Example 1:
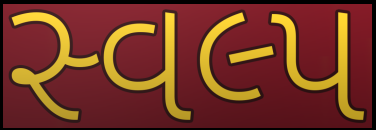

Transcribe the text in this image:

સ્વલ્પ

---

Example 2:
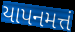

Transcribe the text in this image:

યાપનમત્તં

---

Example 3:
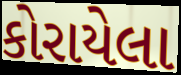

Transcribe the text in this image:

કોરાયેલા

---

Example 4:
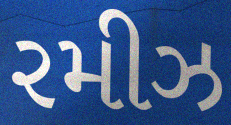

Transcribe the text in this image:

રમીઝ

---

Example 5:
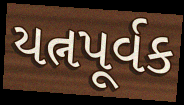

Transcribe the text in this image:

યત્નપૂર્વક